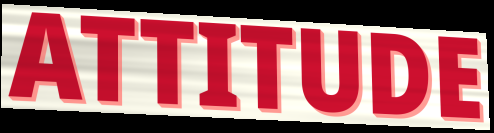
ATTITUDE